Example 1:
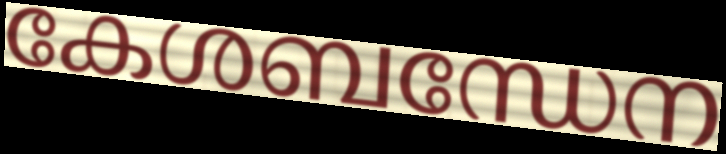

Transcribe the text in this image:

കേശബന്ധേന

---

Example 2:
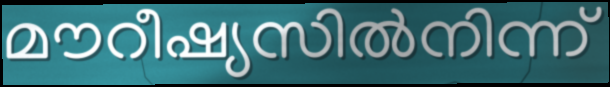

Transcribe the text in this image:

മൗറീഷ്യസിൽനിന്ന്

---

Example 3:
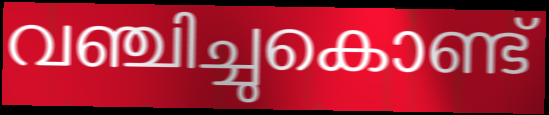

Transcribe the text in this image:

വഞ്ചിച്ചുകൊണ്ട്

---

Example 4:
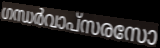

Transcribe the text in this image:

ഗന്ധർവാപ്സരസോ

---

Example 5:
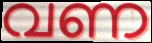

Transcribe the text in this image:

വണ